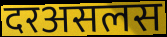
दरअसलस